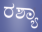
ರಶ್ಯಾ